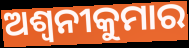
ଅଶ୍ୱନୀକୁମାର